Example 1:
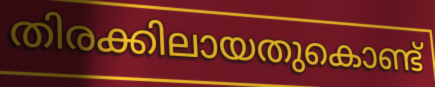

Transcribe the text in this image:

തിരക്കിലായതുകൊണ്ട്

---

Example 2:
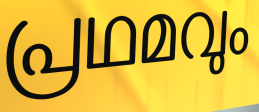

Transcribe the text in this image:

പ്രഥമവും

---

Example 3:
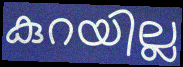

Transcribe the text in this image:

കുറയില്ല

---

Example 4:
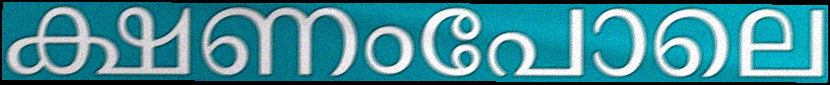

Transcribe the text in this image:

ക്ഷണംപോലെ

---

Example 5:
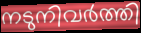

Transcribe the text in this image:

നടുനിവർത്തി